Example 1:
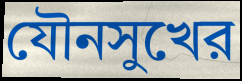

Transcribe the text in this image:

যৌনসুখের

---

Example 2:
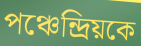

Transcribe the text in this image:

পঞ্চেন্দ্রিয়কে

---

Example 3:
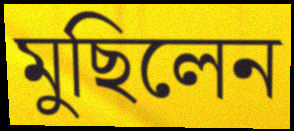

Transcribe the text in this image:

মুছিলেন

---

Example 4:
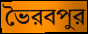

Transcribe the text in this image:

ভৈরবপুর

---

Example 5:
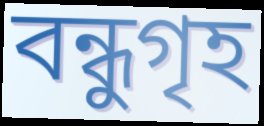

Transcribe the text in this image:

বন্ধুগৃহ